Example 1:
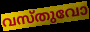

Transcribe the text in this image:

വസ്തുവോ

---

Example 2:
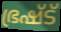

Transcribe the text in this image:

ഭ്രഷ്ട്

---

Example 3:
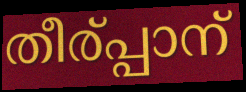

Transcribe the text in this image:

തീര്പ്പാന്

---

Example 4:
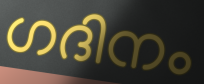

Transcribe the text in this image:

ഗദിനം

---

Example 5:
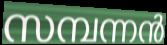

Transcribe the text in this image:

സമ്പന്നൻ